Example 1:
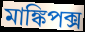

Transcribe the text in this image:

মাঙ্কিপক্স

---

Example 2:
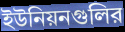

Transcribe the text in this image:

ইউনিয়নগুলির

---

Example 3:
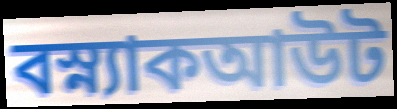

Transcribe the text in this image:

বস্ন্যাকআউট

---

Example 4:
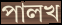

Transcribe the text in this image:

পালখ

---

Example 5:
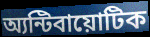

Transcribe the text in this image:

অ্যন্টিবায়োটিক